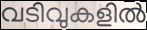
വടിവുകളിൽ